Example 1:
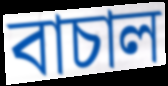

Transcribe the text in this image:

বাচাল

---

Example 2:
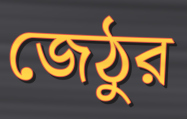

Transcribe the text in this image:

জেঠুর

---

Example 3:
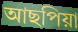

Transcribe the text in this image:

আছপিয়া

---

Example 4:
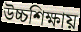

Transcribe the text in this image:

উচ্চশিক্ষায়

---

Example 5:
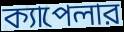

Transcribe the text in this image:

ক্যাপেলার